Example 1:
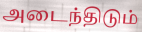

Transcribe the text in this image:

அடைந்திடும்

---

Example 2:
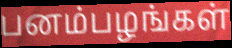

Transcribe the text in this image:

பனம்பழங்கள்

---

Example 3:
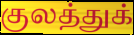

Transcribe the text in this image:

குலத்துக்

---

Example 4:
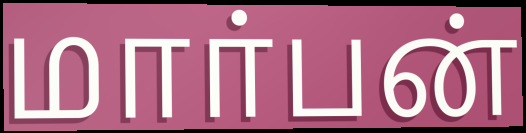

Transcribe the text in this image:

மார்பன்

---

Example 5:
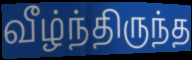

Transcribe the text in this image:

வீழ்ந்திருந்த